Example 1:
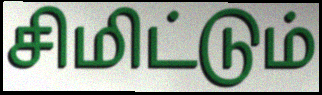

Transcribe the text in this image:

சிமிட்டும்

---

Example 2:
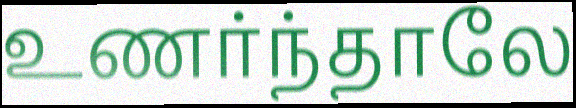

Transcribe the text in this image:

உணர்ந்தாலே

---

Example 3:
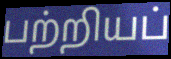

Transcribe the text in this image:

பற்றியப்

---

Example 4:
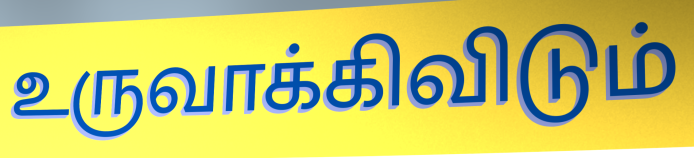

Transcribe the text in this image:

உருவாக்கிவிடும்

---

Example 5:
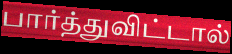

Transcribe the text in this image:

பார்த்துவிட்டால்